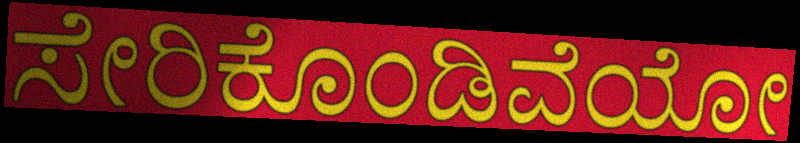
ಸೇರಿಕೊಂಡಿವೆಯೋ